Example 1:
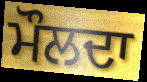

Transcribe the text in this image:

ਮੌਲਦਾ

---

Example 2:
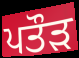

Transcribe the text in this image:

ਪਤੌੜ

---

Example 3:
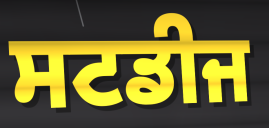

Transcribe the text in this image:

ਸਟਡੀਜ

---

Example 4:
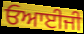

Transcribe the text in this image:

ਓਆਈਜੀ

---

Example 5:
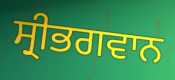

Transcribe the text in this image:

ਸ੍ਰੀਭਗਵਾਨ